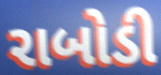
રાબોડી